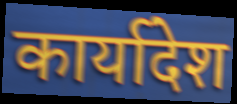
कार्यादेश